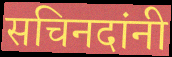
सचिनदांनी